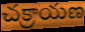
చక్రాయణ